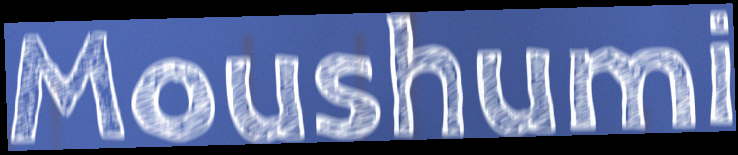
Moushumi